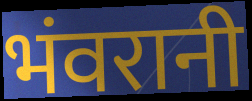
भंवरानी